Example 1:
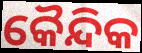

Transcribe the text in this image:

କୈନ୍ଦିକ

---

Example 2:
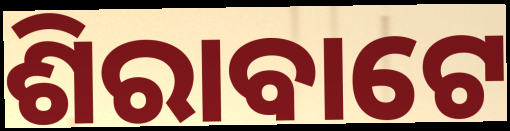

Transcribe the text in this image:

ଶିରାବାଟେ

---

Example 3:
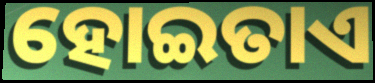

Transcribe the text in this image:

ହୋଇତାଏ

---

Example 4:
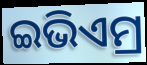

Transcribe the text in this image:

ଇଭିଏମ୍ର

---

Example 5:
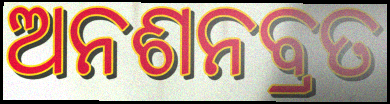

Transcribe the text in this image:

ଅନଶନବ୍ରତ